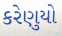
કરેણુયો